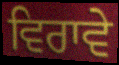
ਵਿਰਾਵੇ